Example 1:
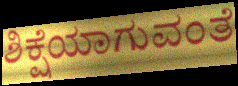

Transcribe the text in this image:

ಶಿಕ್ಷೆಯಾಗುವಂತೆ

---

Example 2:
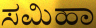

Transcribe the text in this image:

ಸಮಿಹಾ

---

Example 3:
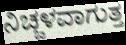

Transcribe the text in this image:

ನಿಚ್ಚಳವಾಗುತ್ತ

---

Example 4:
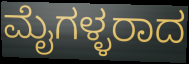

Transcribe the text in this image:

ಮೈಗಳ್ಳರಾದ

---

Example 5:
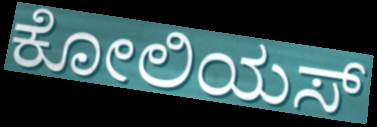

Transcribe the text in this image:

ಕೋಲಿಯಸ್